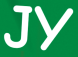
JY